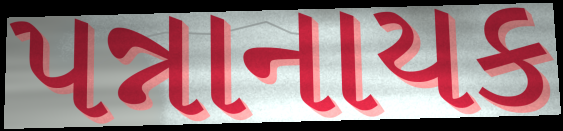
પન્નાનાયક